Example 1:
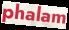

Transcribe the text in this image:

phalam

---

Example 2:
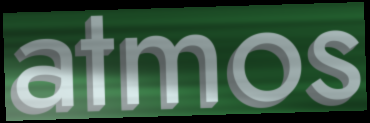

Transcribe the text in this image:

atmos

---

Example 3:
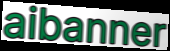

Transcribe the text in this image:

aibanner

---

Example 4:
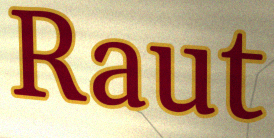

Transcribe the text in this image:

Raut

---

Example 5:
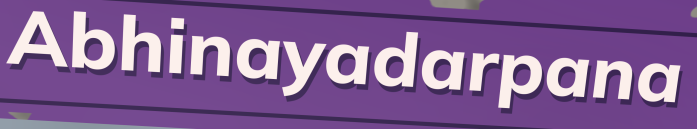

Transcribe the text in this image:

Abhinayadarpana